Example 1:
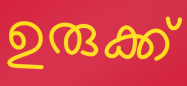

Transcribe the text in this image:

ഉരുക്ക്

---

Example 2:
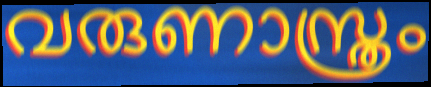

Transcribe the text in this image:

വരുണാസ്ത്രം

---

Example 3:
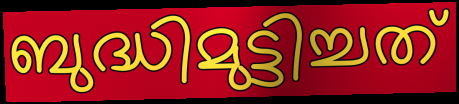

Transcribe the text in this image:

ബുദ്ധിമുട്ടിച്ചത്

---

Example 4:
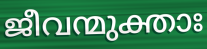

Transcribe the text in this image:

ജീവന്മുക്താഃ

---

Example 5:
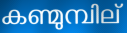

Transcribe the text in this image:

കണ്മുമ്പില്